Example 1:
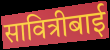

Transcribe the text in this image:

सावित्रीबाई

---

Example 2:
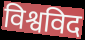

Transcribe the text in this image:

विश्वविद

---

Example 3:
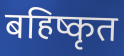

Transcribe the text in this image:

बहिष्कृत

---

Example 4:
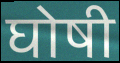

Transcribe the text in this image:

घोषी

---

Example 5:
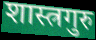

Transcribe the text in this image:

शास्त्रगुरु